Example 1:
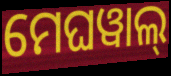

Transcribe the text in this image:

ମେଘୱାଲ୍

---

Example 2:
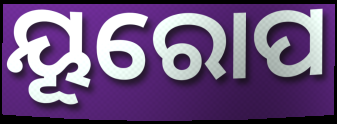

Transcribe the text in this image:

ୟୂରୋପ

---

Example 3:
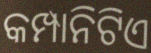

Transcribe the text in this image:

କମ୍ପାନିଟିଏ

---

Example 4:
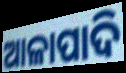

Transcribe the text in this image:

ଆଳାପାଦି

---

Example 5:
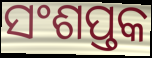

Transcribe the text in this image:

ସଂଶପ୍ତକ